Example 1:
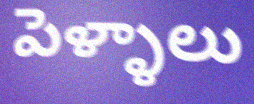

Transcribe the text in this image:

పెళ్ళాలు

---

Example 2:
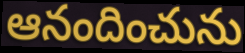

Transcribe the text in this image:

ఆనందించును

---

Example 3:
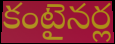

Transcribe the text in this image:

కంటైనర్ల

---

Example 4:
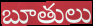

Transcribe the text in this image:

బూతులు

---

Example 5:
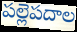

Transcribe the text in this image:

పల్లెపదాల